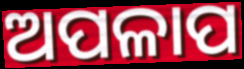
ଅପଳାପ